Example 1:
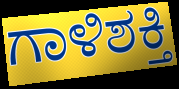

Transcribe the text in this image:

ಗಾಳಿಶಕ್ತಿ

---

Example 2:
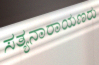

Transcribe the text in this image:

ಸತ್ಯನಾರಾಯಣರು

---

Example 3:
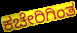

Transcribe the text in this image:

ಕಚೇರಿಗಿಂತ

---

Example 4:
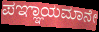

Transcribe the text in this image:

ಪಞ್ಞಾಯಮಾನೇ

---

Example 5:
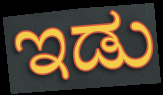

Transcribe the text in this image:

ಇಡು